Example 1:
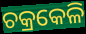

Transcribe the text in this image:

ଚକ୍ରକେଳି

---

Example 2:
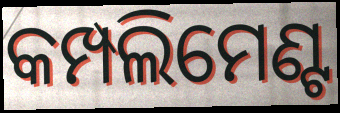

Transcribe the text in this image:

କମ୍ପଲିମେଣ୍ଟ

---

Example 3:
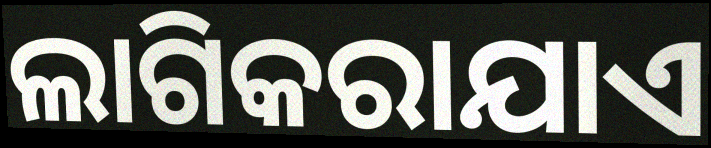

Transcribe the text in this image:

ଲାଗିକରାଯାଏ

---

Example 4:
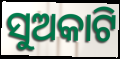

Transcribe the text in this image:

ସୁଅକାଟି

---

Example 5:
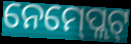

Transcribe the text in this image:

ନେମ୍‍ପ୍ଲେଟ୍